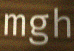
mgh